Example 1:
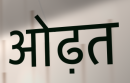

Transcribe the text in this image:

ओढ़त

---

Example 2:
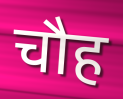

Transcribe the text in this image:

चौह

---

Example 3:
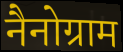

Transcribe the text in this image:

नैनोग्राम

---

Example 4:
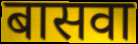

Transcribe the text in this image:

बासवा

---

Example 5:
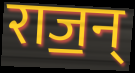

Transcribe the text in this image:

रा॒ज॒न्